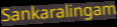
Sankaralingam